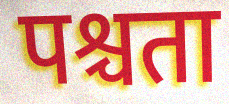
पश्चता